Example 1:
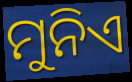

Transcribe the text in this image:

ମୁନିଏ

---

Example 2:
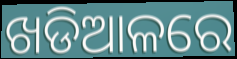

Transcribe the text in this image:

ଖଡିଆଳରେ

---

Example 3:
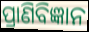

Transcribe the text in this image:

ପ୍ରାଣିବିଜ୍ଞାନ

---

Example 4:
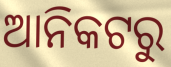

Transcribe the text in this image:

ଆନିକଟରୁ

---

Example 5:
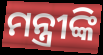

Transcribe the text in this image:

ମନ୍ତ୍ରୀଙ୍କି